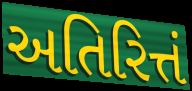
અતિરિત્તં